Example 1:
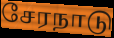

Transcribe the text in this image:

சேரநாடு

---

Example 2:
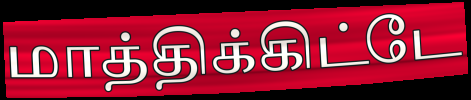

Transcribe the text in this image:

மாத்திக்கிட்டே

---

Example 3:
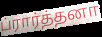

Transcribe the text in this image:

ப்ரார்த்தனா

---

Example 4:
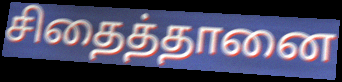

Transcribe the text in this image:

சிதைத்தானை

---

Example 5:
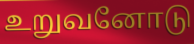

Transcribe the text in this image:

உறுவனோடு